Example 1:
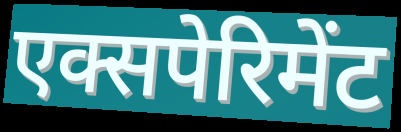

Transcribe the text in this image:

एक्सपेरिमेंट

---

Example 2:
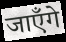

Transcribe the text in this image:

जाएँगे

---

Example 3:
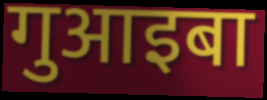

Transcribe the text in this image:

गुआइबा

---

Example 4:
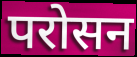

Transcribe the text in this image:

परोसन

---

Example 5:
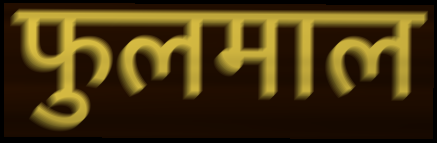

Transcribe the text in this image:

फुलमाल